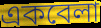
একবেলা